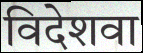
विदेशवा